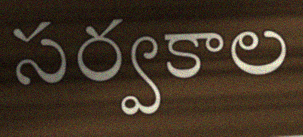
సర్వకాల